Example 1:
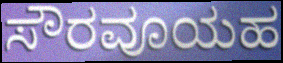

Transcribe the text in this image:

ಸೌರವೂಯಹ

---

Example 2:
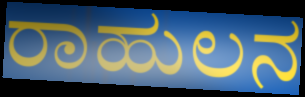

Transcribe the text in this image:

ರಾಹುಲನ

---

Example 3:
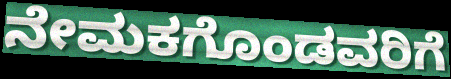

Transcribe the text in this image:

ನೇಮಕಗೊಂಡವರಿಗೆ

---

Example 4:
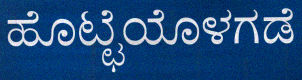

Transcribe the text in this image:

ಹೊಟ್ಟೆಯೊಳಗಡೆ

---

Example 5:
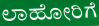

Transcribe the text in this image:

ಲಾಹೋರಿಗೆ